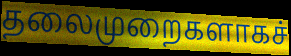
தலைமுறைகளாகச்